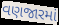
વણજારમાં